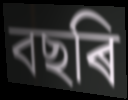
বছৰি